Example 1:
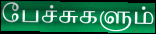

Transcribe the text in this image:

பேச்சுகளும்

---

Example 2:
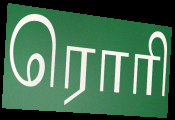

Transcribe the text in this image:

ரொரி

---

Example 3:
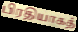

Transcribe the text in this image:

பிரதியாகத்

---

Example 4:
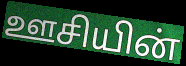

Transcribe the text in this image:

ஊசியின்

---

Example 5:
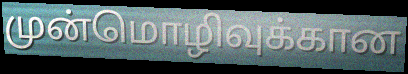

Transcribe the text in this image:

முன்மொழிவுக்கான